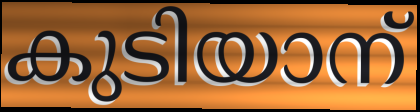
കുടിയാന്